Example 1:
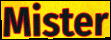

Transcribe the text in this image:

Mister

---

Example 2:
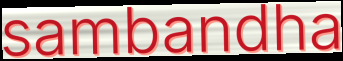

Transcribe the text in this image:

sambandha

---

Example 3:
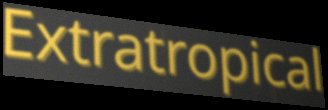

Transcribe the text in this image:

Extratropical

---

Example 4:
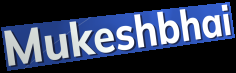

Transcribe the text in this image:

Mukeshbhai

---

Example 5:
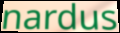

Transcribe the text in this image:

nardus